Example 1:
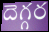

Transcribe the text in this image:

దెగ్గర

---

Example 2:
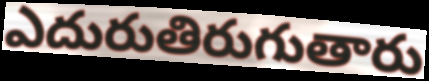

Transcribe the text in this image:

ఎదురుతిరుగుతారు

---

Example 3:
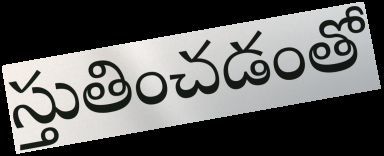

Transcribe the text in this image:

స్తుతించడంతో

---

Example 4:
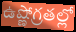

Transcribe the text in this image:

ఉష్ణోగ్రతల్లో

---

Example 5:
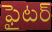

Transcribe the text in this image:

ఫైటర్